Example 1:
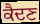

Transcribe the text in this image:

ਕੈਦਣ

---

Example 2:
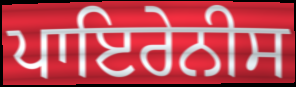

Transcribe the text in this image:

ਪਾਇਰੇਨੀਸ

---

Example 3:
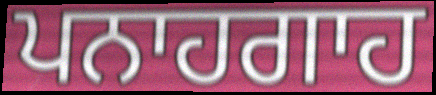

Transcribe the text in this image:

ਪਨਾਹਗਾਹ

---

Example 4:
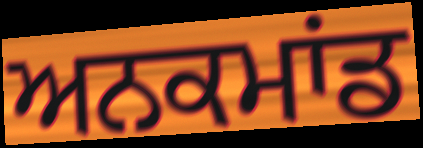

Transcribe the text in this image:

ਅਨਕਮਾਂਡ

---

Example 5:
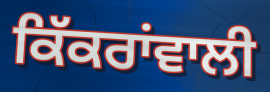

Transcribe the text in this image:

ਕਿੱਕਰਾਂਵਾਲੀ